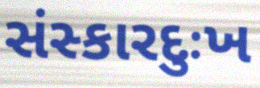
સંસ્કારદુઃખ